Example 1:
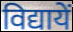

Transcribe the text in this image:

विद्यायें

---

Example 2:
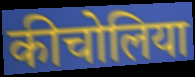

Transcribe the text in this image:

कीचोलिया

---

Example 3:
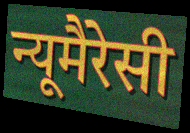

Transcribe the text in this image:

न्यूमैरेसी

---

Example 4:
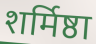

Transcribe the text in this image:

शर्मिष्ठा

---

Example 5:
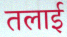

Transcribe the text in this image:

तलाई